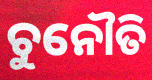
ଚୁନୌତି